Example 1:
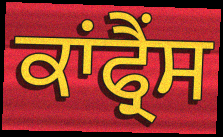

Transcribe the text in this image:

ਕਾਂਫ੍ਰੈਂਸ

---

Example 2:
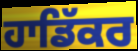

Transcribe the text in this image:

ਹਾਡਿੱਕਰ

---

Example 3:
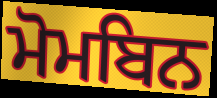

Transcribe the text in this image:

ਮੋਮਬਿਨ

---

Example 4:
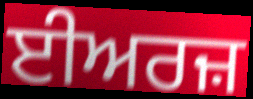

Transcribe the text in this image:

ਈਅਰਜ਼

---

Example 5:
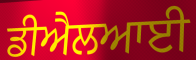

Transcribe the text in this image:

ਡੀਐਲਆਈ